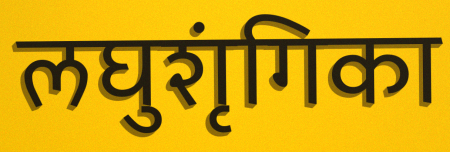
लघुशृंगिका